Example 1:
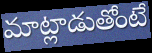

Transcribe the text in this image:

మాట్లాడుతోంటే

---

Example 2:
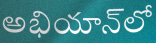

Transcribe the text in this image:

అభియాన్‌లో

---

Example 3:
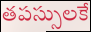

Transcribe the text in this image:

తపస్సులకే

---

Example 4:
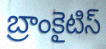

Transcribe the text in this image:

బ్రాంకైటిస్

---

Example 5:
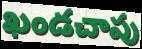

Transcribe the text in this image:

ఖండచాపు